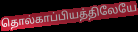
தொல்காப்பியத்திலேயே